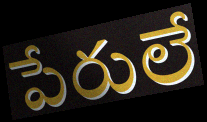
పేరులే